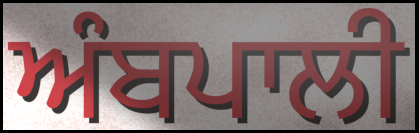
ਅੰਬਪਾਲੀ